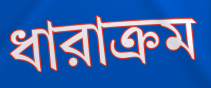
ধারাক্রম